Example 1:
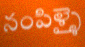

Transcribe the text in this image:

నంపిళ్ళై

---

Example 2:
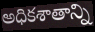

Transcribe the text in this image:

అధికశాతాన్ని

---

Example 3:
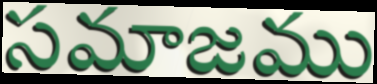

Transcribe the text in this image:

సమాజము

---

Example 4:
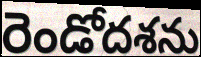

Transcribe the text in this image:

రెండోదశను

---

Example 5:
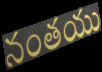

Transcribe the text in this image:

నంతయు